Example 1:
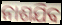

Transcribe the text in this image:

ନାଶଯିବ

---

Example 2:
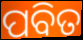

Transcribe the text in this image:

ପବିତ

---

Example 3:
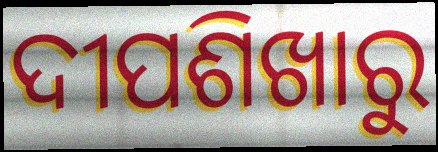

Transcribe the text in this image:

ଦୀପଶିଖାରୁ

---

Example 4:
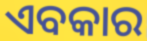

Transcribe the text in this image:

ଏବକାର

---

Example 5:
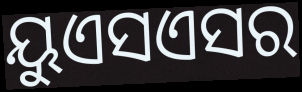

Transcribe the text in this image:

ୟୁଏସଏସର